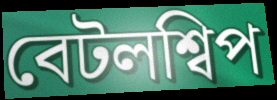
বেটলশ্বিপ